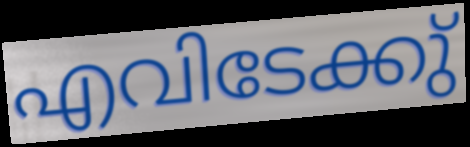
എവിടേക്കു്